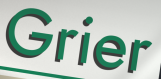
Grier